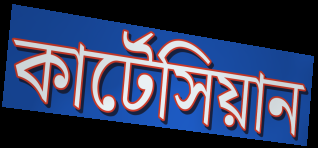
কার্টেসিয়ান